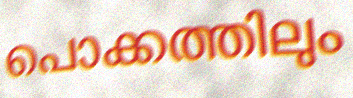
പൊക്കത്തിലും